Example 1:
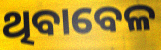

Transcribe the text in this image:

ଥିବାବେଳ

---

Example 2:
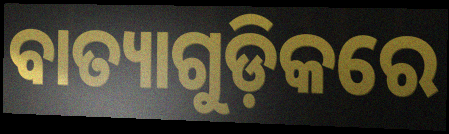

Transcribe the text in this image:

ବାତ୍ୟାଗୁଡ଼ିକରେ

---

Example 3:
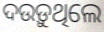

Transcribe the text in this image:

ଦଉଡ଼ୁଥିଲେ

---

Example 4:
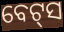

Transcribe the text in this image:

ବେଟ୍‍ସ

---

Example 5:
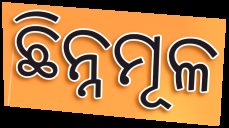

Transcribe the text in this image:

ଛିନ୍ନମୂଳ